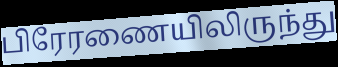
பிரேரணையிலிருந்து